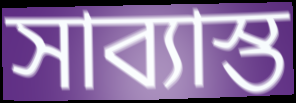
সাব্যাস্ত